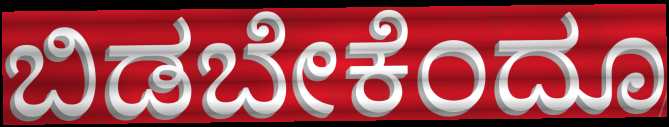
ಬಿಡಬೇಕೆಂದೂ